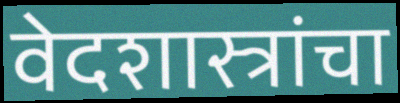
वेदशास्त्रांचा